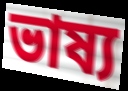
ভাষ্য